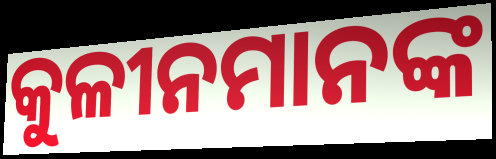
କୁଳୀନମାନଙ୍କ